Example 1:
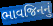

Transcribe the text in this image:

ભાવજિનનું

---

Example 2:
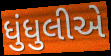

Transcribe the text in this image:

ધુંધુલીએ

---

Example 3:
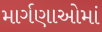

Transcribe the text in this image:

માર્ગણાઓમાં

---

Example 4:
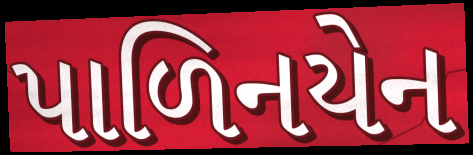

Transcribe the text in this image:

પાળિનયેન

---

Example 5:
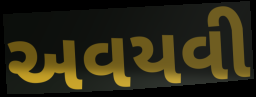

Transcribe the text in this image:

અવયવી